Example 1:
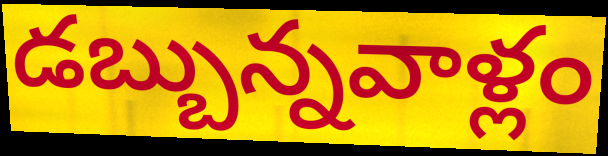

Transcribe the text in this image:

డబ్బున్నవాళ్లం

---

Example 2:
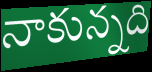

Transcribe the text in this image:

నాకున్నది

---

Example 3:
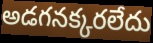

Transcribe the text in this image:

అడగనక్కరలేదు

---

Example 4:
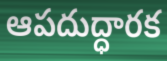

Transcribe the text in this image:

ఆపదుద్ధారక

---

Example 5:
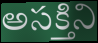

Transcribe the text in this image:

అసక్తిని